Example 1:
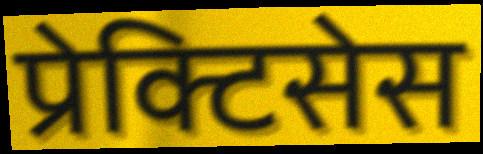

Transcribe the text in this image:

प्रेक्टिसेस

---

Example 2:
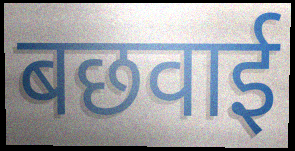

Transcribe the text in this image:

बछवाई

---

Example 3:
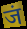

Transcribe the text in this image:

जं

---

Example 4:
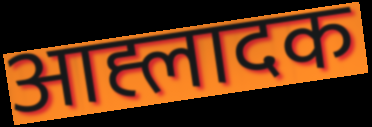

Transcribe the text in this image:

आह्लादक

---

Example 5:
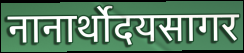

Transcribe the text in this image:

नानार्थोदयसागर